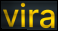
vira